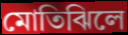
মোতিঝিলে